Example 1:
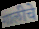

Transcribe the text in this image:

गालीचे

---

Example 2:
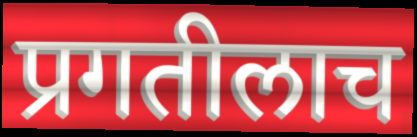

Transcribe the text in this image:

प्रगतीलाच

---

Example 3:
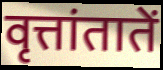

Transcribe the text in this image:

वृत्तांतातें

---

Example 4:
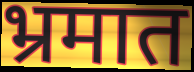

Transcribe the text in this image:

भ्रमात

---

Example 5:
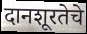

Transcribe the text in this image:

दानशूरतेचे